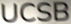
UCSB